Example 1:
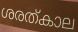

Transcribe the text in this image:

ശരത്കാല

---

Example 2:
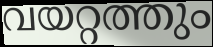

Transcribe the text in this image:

വയറ്റത്തും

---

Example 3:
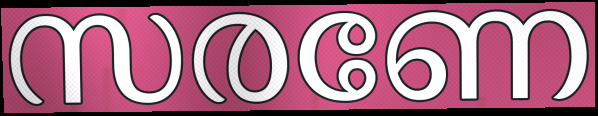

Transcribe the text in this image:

സരണേ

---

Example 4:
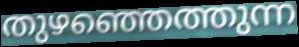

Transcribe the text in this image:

തുഴഞ്ഞെത്തുന്ന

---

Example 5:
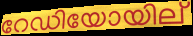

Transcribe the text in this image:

റേഡിയോയില്